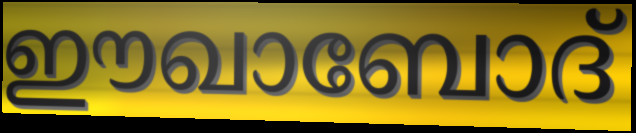
ഈഖാബോദ്